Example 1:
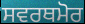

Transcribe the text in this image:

ਸਵਰਥਮੋਰ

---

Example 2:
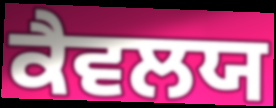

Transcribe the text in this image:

ਕੈਵਲਯ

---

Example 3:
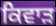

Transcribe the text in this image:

ਕਿਵਾੜ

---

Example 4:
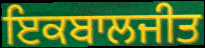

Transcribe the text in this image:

ਇਕਬਾਲਜੀਤ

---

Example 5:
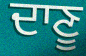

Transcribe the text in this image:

ਦਾਣੂ